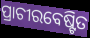
ପ୍ରାଚୀରବେଷ୍ଟିତ